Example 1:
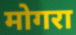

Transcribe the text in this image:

मोगरा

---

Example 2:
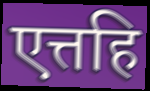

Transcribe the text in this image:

एत्तहि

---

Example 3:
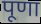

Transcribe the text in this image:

पूणा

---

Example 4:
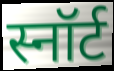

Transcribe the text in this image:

स्नॉर्ट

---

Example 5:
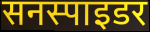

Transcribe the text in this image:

सनस्पाइडर